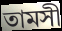
তামসী